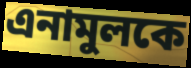
এনামুলকে